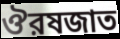
ঔরষজাত